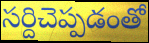
సర్దిచెప్పడంతో